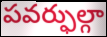
పవర్ఫుల్గా